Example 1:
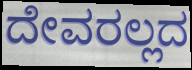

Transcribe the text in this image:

ದೇವರಲ್ಲದ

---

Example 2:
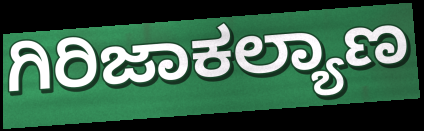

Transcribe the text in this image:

ಗಿರಿಜಾಕಲ್ಯಾಣ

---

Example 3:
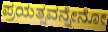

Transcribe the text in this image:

ಪ್ರಯತ್ನವನ್ನೇನೋ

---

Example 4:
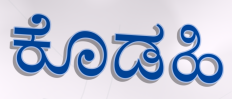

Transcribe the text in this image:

ಕೊಡಹಿ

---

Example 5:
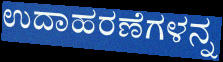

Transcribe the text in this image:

ಉದಾಹರಣೆಗಳನ್ನ